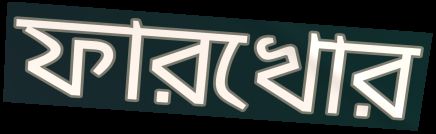
ফারখোর